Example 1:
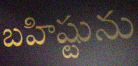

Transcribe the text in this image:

బహిష్టును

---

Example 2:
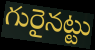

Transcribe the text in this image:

గురైనట్టు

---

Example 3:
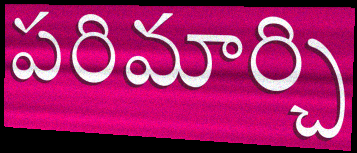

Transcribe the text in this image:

పరిమార్చి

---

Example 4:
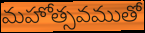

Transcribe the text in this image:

మహోత్సవముతో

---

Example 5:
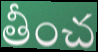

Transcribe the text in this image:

తీంచ